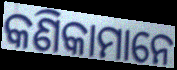
କଣିକାମାନେ